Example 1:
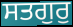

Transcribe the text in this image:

ਸਤਗੁਰੁ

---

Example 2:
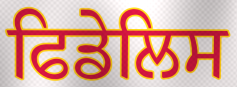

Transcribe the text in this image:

ਫਿਡੇਲਿਸ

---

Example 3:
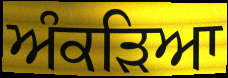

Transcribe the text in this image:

ਅੰਕੜਿਆ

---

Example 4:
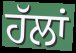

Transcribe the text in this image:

ਹੱਲਾਂ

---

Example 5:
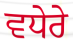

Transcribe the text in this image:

ਵਧੇਰੇ